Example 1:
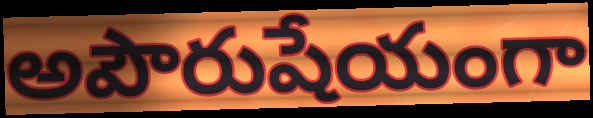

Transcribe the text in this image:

అపౌరుషేయంగా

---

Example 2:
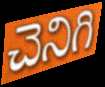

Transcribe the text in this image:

చెనిగి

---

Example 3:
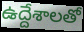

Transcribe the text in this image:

ఉద్దేశాలతో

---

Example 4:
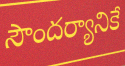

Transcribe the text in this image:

సౌందర్యానికే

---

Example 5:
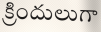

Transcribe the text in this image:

క్రిందులుగా